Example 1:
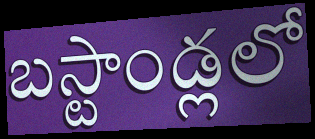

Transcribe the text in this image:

బస్టాండ్లలో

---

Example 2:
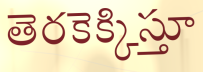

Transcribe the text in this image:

తెరకెక్కిస్తూ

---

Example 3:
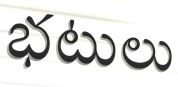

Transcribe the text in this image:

భటులు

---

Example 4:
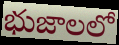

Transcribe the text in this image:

భుజాలలో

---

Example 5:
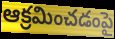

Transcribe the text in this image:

ఆక్రమించడంపై